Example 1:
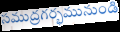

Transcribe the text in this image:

సముద్రగర్భమునుండి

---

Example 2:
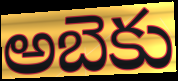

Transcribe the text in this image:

అబెకు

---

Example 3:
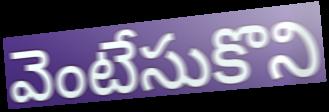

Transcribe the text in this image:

వెంటేసుకొని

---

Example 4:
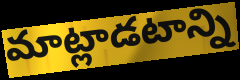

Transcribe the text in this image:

మాట్లాడటాన్ని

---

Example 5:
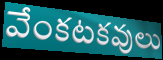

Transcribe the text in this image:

వేంకటకవులు